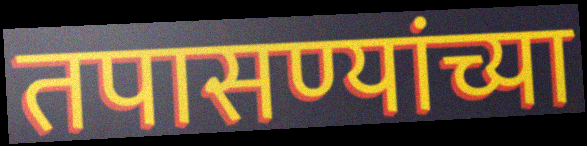
तपासण्यांच्या